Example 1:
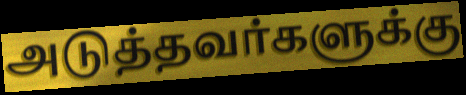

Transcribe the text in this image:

அடுத்தவர்களுக்கு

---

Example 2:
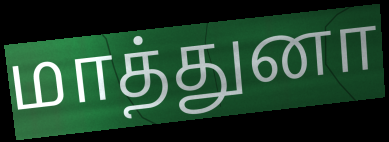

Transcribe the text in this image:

மாத்துனா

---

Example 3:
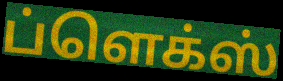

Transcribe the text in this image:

ப்ளெக்ஸ்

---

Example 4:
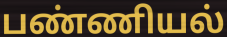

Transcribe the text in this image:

பண்ணியல்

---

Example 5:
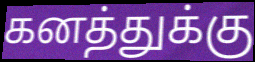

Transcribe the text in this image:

கனத்துக்கு